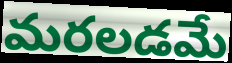
మరలడమే